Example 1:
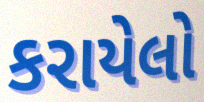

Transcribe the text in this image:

કરાયેલો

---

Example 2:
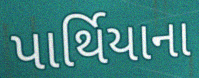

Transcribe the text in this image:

પાર્થિયાના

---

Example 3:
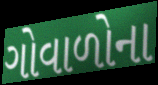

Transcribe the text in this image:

ગોવાળોના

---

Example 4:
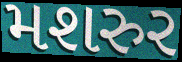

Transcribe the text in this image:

મશરુર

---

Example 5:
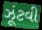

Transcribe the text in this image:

ઝૂંટવી